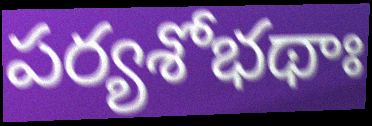
పర్యశోభథాః